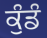
ਕੁੰਡੰ